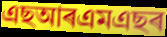
এছআৰএমএছৰ